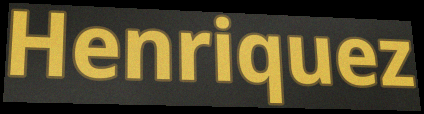
Henriquez